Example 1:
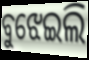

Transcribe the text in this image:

ବୁଝେଇଲି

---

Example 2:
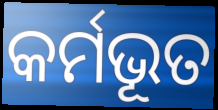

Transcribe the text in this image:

କର୍ମଭୂତ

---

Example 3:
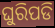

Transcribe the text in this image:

ଘୁରିପଡି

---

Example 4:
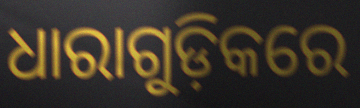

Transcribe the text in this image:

ଧାରାଗୁଡ଼ିକରେ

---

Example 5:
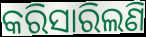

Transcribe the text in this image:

କରିସାରିଲଣି